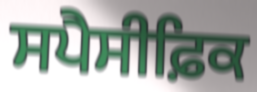
ਸਪੈਸੀਫ਼ਿਕ